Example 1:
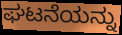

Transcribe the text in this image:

ಘಟನೆಯನ್ನು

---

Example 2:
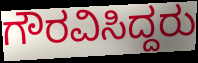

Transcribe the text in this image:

ಗೌರವಿಸಿದ್ದರು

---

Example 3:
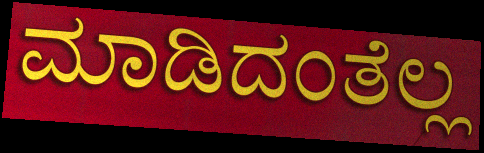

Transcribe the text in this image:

ಮಾಡಿದಂತೆಲ್ಲ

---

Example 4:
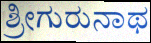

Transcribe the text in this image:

ಶ್ರೀಗುರುನಾಥ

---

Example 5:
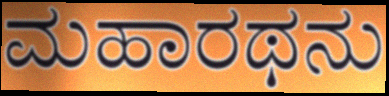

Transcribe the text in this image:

ಮಹಾರಥನು